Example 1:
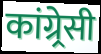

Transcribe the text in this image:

कांग्र्रेसी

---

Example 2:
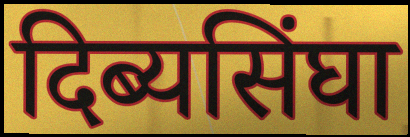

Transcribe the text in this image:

दिब्यसिंघा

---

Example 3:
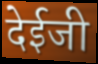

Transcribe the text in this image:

देईजी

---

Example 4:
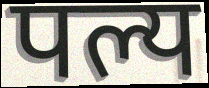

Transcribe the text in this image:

पल्य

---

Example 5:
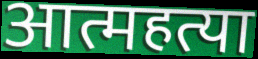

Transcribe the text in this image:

आत्‍महत्‍या